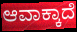
ಆವಾಕ್ಕಾದೆ